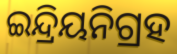
ଇନ୍ଦ୍ରିୟନିଗ୍ରହ